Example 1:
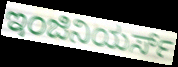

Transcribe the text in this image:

ಇಂಜಿನಿಯರ್ಸ್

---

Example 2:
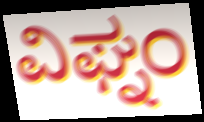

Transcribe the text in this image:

ವಿಘ್ನಂ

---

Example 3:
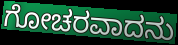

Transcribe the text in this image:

ಗೋಚರವಾದನು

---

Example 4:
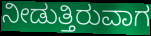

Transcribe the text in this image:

ನೀಡುತ್ತಿರುವಾಗ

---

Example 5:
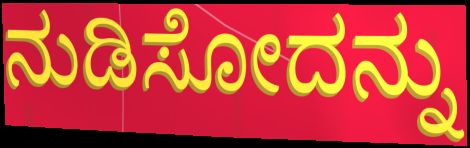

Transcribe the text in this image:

ನುಡಿಸೋದನ್ನು